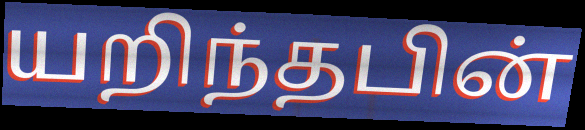
யறிந்தபின்